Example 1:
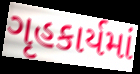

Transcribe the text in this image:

ગૃહકાર્યમાં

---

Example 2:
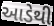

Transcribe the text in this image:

આડેથી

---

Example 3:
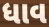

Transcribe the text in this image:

ધાવ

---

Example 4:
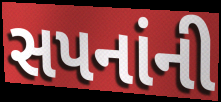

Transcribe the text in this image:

સપનાંની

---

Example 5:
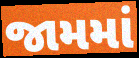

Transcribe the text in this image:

જામમાં